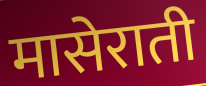
मासेराती